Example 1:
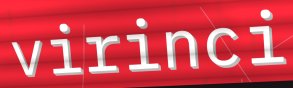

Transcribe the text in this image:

virinci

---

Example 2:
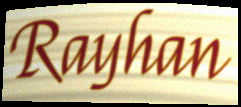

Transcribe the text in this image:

Rayhan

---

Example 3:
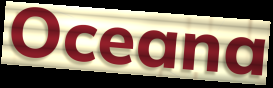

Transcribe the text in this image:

Oceana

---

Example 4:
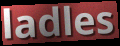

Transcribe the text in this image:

ladles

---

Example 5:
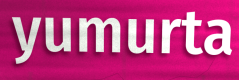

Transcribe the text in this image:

yumurta